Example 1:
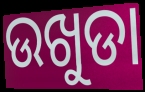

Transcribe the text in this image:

ଉଖୁଡା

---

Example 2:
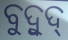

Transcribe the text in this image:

ବୁଦ୍ବୁଦ୍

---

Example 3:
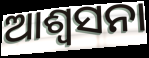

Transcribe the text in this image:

ଆଶ୍ୱସନା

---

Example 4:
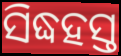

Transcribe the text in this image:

ସିଦ୍ଧହସ୍ତ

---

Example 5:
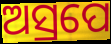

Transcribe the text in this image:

ଅସ୍ରପେ